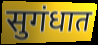
सुगंधात